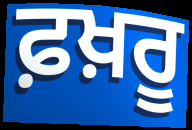
ਫ਼ਖ਼ਰੂ